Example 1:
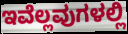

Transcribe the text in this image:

ಇವೆಲ್ಲವುಗಳಲ್ಲಿ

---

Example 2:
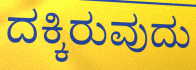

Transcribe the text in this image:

ದಕ್ಕಿರುವುದು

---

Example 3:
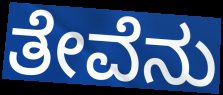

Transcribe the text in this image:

ತೇವೆನು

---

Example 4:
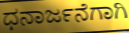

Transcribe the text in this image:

ಧನಾರ್ಜನೆಗಾಗಿ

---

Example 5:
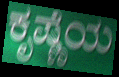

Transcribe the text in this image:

ಕೃಷ್ಣೆಯ